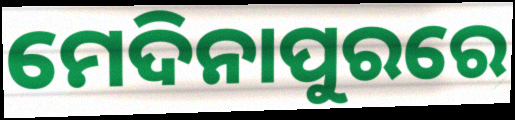
ମେଦିନାପୁରରେ